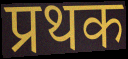
प्रथक